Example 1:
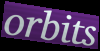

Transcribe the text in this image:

orbits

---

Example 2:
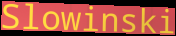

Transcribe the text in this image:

Slowinski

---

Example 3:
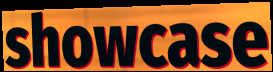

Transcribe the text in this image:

showcase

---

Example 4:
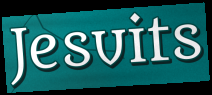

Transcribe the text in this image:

Jesuits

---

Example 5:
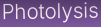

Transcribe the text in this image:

Photolysis